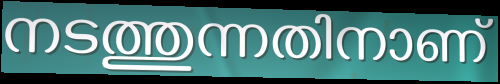
നടത്തുന്നതിനാണ്